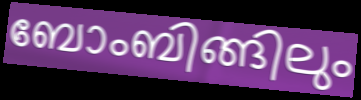
ബോംബിങ്ങിലും